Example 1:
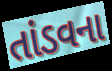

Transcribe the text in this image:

તાંડવના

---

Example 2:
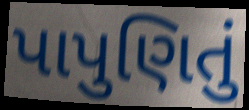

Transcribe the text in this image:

પાપુણિતું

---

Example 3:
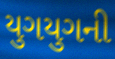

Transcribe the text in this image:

યુગયુગની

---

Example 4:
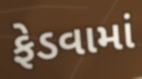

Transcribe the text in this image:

ફેડવામાં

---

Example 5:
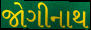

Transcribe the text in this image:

જોગીનાથ